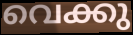
വെക്കു